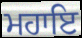
ਮਹਾਇ